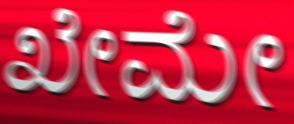
ಖೇಮೇ